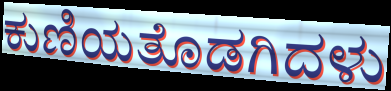
ಕುಣಿಯತೊಡಗಿದಳು